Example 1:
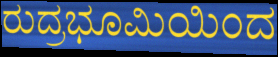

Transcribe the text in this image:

ರುದ್ರಭೂಮಿಯಿಂದ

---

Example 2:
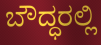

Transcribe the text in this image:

ಬೌದ್ಧರಲ್ಲಿ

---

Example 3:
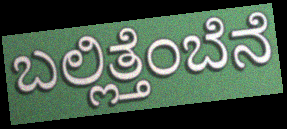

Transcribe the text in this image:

ಬಲ್ಲಿತ್ತೆಂಬೆನೆ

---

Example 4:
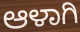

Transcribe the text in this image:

ಆಳಾಗಿ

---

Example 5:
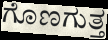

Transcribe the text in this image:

ಗೊಣಗುತ್ತ